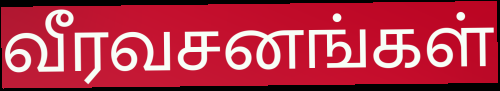
வீரவசனங்கள்